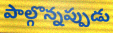
పాల్గొన్నప్పుడు